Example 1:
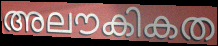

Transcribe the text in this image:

അലൗകികത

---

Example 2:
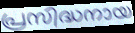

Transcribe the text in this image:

പ്രസിദ്ധനായ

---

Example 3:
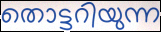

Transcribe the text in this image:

തൊട്ടറിയുന്ന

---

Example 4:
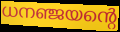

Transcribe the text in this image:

ധനഞ്ജയന്റെ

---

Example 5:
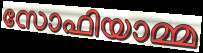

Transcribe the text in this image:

സോഫിയാമ്മ